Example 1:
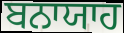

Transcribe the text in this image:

ਬਨਾਯਾਹ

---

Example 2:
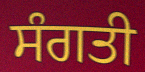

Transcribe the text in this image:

ਸੰਗਤੀ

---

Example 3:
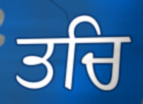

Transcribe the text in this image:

ਤਚਿ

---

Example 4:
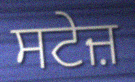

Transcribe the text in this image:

ਸਟੇਜ਼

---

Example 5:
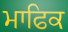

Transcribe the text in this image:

ਮਾਫਿਕ